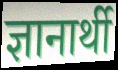
ज्ञानार्थी